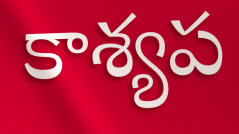
కాశ్యప